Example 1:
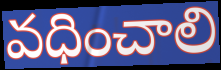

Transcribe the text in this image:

వధించాలి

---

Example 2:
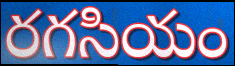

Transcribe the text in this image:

రగసియం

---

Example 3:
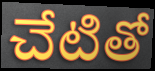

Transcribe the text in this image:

చేటితో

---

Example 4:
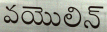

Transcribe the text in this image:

వయొలిన్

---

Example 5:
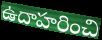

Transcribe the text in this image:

ఉదాహరించి